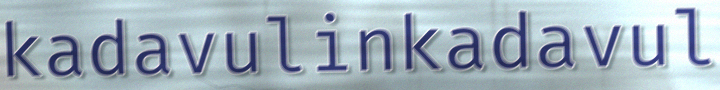
kadavulinkadavul